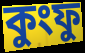
কুংফু